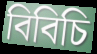
বিবিচি